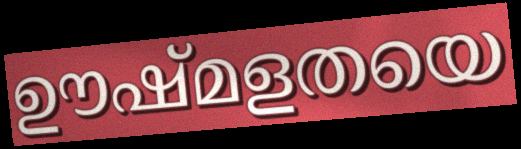
ഊഷ്മളതയെ